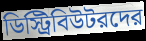
ডিস্ট্রিবিউটরদের